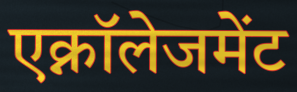
एक्नॉलेजमेंट